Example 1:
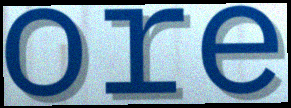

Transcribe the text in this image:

ore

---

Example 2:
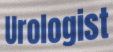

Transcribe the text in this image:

Urologist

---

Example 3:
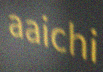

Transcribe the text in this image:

aaichi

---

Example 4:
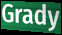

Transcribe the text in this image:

Grady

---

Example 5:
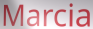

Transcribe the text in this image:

Marcia